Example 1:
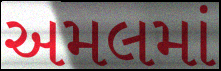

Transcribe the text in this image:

અમલમાં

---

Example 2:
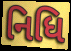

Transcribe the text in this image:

નિધિ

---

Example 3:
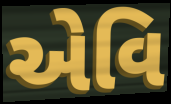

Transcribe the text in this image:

એવિ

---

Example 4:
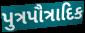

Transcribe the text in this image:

પુત્રપૌત્રાદિક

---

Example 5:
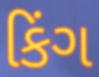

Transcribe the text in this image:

કિંગ